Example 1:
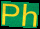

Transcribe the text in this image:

Ph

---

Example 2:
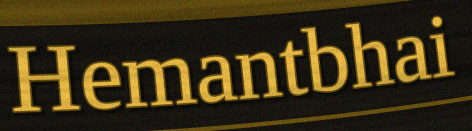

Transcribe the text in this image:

Hemantbhai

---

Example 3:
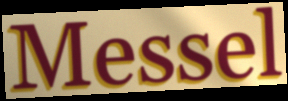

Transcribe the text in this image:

Messel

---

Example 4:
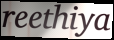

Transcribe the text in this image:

reethiya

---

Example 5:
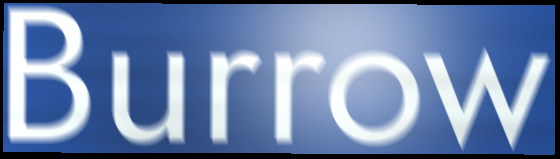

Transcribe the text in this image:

Burrow